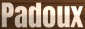
Padoux